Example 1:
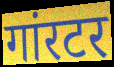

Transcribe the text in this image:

गांरटर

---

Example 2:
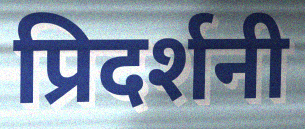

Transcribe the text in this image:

प्रिदर्शनी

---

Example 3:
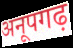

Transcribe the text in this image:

अनूपगढ़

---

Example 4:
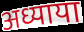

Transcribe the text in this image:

अध्याया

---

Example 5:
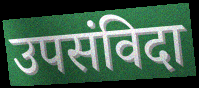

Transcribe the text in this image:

उपसंविदा